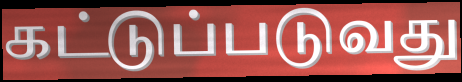
கட்டுப்படுவது